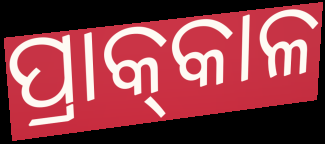
ପ୍ରାକ୍‌କାଳ